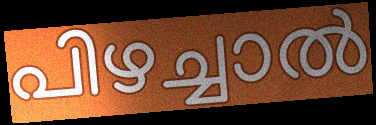
പിഴച്ചാൽ